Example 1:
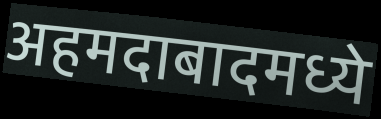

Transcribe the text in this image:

अहमदाबादमध्ये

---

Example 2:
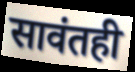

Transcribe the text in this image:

सावंतही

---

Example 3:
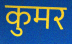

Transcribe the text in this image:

कुमर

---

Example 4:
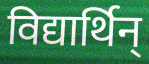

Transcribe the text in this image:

विद्यार्थिन्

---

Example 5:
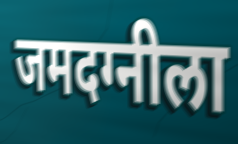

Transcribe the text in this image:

जमदग्नीला